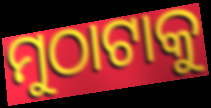
ମୁଠାଟାକୁ